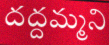
దద్దమ్మని